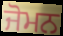
ਜੋਮਨ